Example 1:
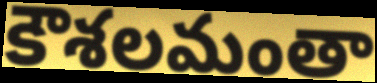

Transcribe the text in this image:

కౌశలమంతా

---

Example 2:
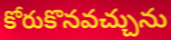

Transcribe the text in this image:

కోరుకొనవచ్చును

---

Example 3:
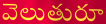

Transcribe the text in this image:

వెలుతురూ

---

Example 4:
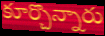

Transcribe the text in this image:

కూర్చొన్నారు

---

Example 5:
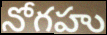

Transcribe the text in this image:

నోగహు